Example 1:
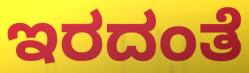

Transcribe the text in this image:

ಇರದಂತೆ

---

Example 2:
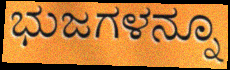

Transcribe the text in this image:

ಭುಜಗಳನ್ನೂ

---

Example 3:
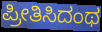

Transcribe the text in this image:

ಪ್ರೀತಿಸಿದಂಥ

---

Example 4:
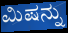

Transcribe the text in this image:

ಮಿಷನ್ನು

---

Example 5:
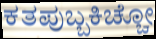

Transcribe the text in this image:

ಕತಪುಬ್ಬಕಿಚ್ಚೋ